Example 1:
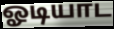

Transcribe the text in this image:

ஓடியாட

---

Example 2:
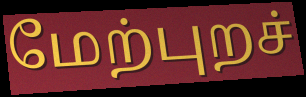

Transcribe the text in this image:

மேற்புறச்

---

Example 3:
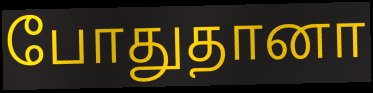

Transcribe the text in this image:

போதுதானா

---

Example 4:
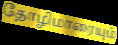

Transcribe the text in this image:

தோழிமாரையும்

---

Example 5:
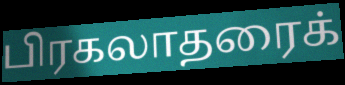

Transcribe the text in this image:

பிரகலாதரைக்